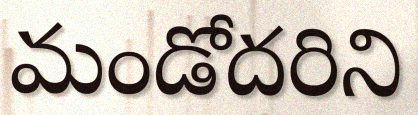
మండోదరిని